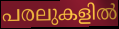
പരലുകളിൽ